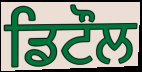
ਡਿਟੌਲ